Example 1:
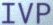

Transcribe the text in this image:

IVP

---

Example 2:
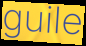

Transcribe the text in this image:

guile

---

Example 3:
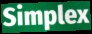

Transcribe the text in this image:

Simplex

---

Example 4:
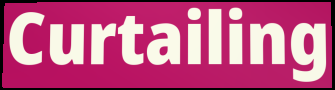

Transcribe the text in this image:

Curtailing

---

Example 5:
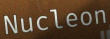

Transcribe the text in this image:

Nucleon